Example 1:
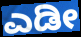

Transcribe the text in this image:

ಎಡೀ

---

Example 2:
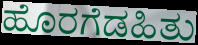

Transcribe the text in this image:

ಹೊರಗೆಡಹಿತು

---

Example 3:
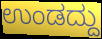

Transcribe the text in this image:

ಉಂಡದ್ದು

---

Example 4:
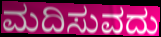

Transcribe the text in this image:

ಮದಿಸುವದು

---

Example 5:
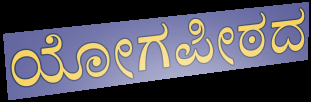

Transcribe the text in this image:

ಯೋಗಪೀಠದ